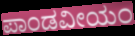
ಪಾಂಡವೀಯಂ